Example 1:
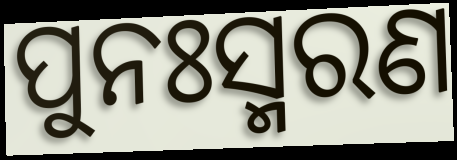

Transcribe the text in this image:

ପୁନଃସ୍ମରଣ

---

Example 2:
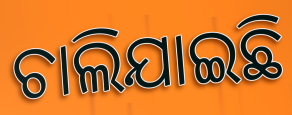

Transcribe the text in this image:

ଚାଲିଯାଇଛି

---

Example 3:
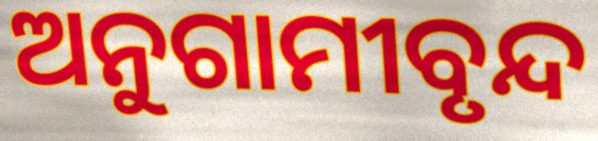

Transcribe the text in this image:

ଅନୁଗାମୀବୃନ୍ଦ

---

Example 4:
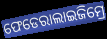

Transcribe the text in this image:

ଫେଡେରାଲାଇଜିମ୍ରେ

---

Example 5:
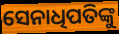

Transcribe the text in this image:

ସେନାଧିପତିଙ୍କୁ